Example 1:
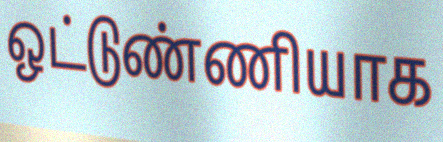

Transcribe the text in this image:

ஒட்டுண்ணியாக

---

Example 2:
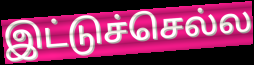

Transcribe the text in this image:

இட்டுச்செல்ல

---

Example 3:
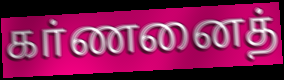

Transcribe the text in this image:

கர்ணனைத்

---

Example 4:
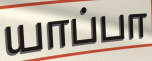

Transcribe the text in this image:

யாப்பா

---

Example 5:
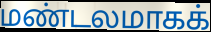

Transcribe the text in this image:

மண்டலமாகக்